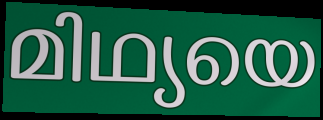
മിഥ്യയെ